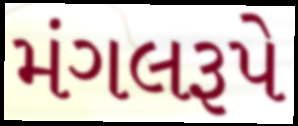
મંગલરૂપે